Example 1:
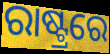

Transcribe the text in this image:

ରାଷ୍ଟ୍ରରେ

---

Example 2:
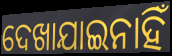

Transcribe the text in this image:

ଦେଖାଯାଇନାହିଁ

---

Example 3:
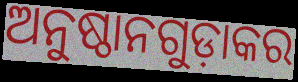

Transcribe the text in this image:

ଅନୁଷ୍ଠାନଗୁଡ଼ାକର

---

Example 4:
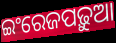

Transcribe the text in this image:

ଇଂରେଜପଢ଼ୁଆ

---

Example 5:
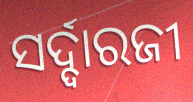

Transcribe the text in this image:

ସର୍ଦ୍ଦାରଜୀ